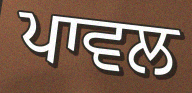
ਪਾਵਲ